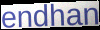
endhan